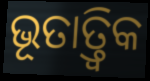
ଭୂତାତ୍ତ୍ୱିକ